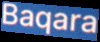
Baqara